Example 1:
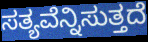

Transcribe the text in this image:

ಸತ್ಯವೆನ್ನಿಸುತ್ತದೆ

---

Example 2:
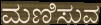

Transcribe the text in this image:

ಮಣಿಸುವ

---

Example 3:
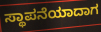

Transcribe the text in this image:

ಸ್ಥಾಪನೆಯಾದಾಗ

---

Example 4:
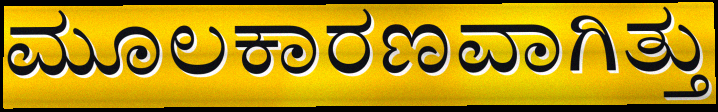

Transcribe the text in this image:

ಮೂಲಕಾರಣವಾಗಿತ್ತು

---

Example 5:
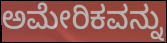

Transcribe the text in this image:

ಅಮೇರಿಕವನ್ನು